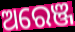
ଅରେଞ୍ଜ